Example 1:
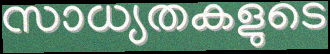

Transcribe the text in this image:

സാധ്യതകളുടെ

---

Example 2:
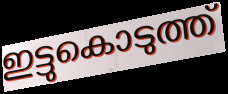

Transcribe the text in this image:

ഇട്ടുകൊടുത്ത്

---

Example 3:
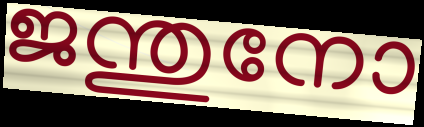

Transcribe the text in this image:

ജന്തുനോ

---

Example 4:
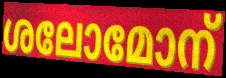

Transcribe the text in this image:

ശലോമോന്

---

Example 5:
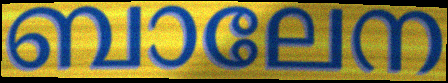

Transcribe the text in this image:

ബാലേന